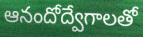
ఆనందోద్వేగాలతో